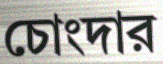
চোংদার